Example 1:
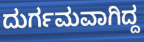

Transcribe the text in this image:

ದುರ್ಗಮವಾಗಿದ್ದ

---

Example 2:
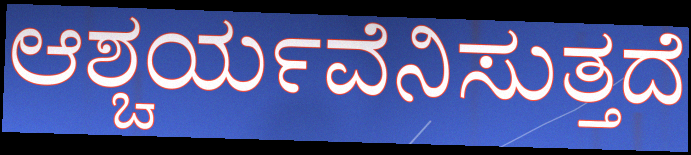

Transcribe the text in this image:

ಆಶ್ಚರ್ಯವೆನಿಸುತ್ತದೆ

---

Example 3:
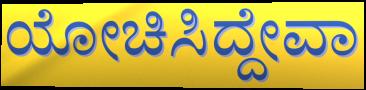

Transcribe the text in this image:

ಯೋಚಿಸಿದ್ದೇವಾ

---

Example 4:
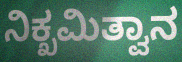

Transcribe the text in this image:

ನಿಕ್ಖಮಿತ್ವಾನ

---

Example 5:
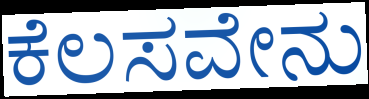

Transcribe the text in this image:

ಕೆಲಸವೇನು